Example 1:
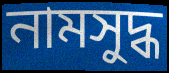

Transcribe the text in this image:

নামসুদ্ধ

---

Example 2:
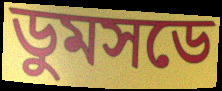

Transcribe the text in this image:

ডুমসডে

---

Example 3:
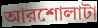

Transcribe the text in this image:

আরশোলাটা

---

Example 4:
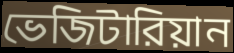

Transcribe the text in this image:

ভেজিটারিয়ান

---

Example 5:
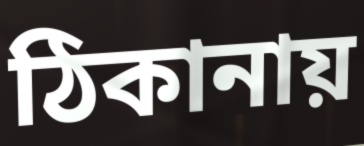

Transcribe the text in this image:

ঠিকানায়